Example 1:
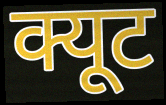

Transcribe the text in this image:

क्यूट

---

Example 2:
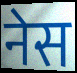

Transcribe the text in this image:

नेस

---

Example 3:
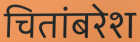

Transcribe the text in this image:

चितांबरेश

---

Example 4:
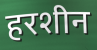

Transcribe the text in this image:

हरशीन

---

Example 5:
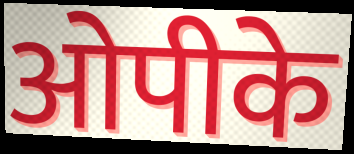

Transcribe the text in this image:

ओपीके